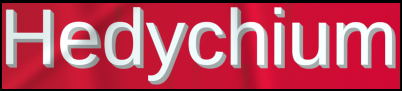
Hedychium